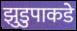
झुडुपाकडे